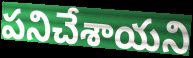
పనిచేశాయని